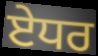
ਏਧਰ